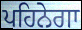
ਪਹਿਨੇਗਾ